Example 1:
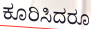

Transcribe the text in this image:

ಕೂರಿಸಿದರೂ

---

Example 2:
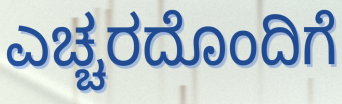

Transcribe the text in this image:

ಎಚ್ಚರದೊಂದಿಗೆ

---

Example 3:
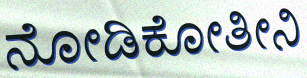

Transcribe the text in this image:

ನೋಡಿಕೋತೀನಿ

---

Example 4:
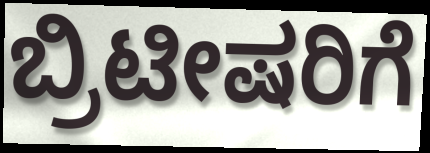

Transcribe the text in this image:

ಬ್ರಿಟೀಷರಿಗೆ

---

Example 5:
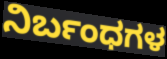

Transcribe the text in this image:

ನಿರ್ಬಂಧಗಳ